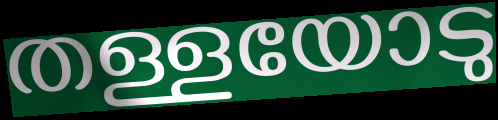
തള്ളയോടു